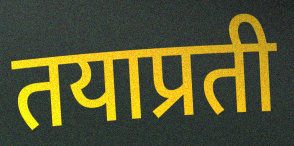
तयाप्रती